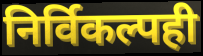
निर्विकल्पही